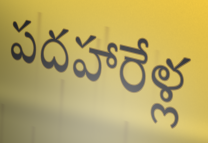
పదహారేళ్ల